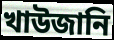
খাউজানি